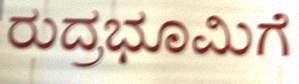
ರುದ್ರಭೂಮಿಗೆ